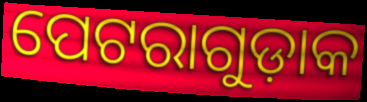
ପେଟରାଗୁଡ଼ାକ